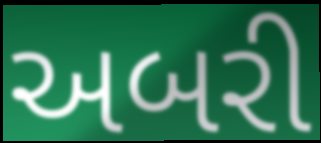
અબરી